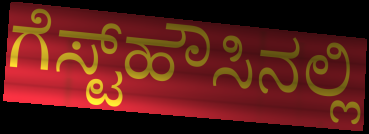
ಗೆಸ್ಟ್‌ಹೌಸಿನಲ್ಲಿ